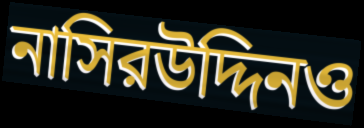
নাসিরউদ্দিনও